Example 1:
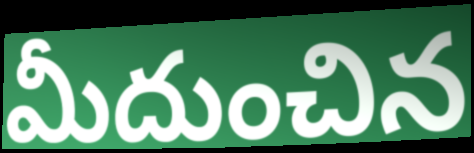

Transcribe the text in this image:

మీదుంచిన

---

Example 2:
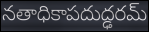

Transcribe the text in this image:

నతాధికాపదుద్ఢరమ్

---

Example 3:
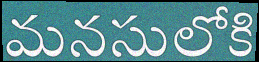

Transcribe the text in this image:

మనసులోకి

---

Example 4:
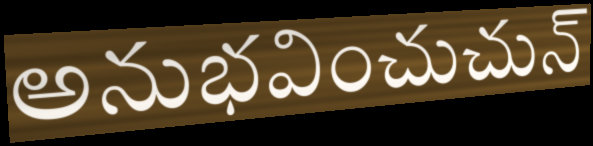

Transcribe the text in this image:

అనుభవించుచున్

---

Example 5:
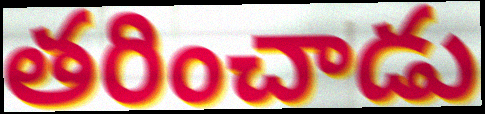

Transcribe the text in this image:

తరించాడు